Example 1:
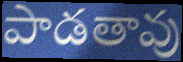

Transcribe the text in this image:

పాడతావు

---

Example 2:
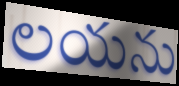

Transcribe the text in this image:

లయను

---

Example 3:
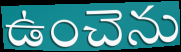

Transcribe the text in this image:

ఉంచెను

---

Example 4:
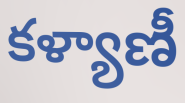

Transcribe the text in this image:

కళ్యాణీ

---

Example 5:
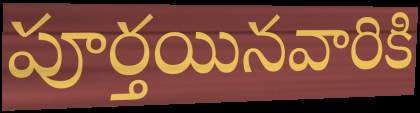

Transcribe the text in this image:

పూర్తయినవారికి